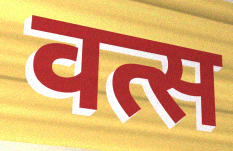
वत्स